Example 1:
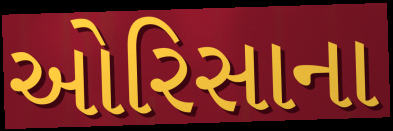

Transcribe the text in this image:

ઓરિસાના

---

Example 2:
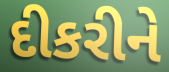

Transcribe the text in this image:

દીકરીને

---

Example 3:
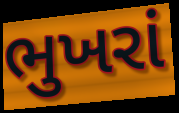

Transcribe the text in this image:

ભુખરાં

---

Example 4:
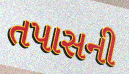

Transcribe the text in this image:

તપાસની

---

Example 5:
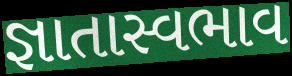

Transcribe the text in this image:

જ્ઞાતાસ્વભાવ